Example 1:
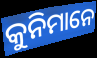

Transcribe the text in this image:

କୁନିମାନେ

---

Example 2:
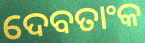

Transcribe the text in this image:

ଦେବତାଂକ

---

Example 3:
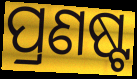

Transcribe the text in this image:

ପ୍ରଣଷ୍ଟ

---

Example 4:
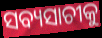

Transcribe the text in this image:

ସବ୍ୟସାଚୀକୁ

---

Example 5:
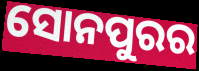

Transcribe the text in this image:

ସୋନପୁରର